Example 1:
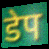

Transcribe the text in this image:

डेप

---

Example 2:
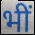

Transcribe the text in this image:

भीं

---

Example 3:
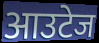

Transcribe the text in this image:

आउटेज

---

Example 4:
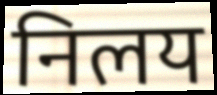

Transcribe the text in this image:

निलय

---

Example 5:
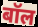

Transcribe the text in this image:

बॉल